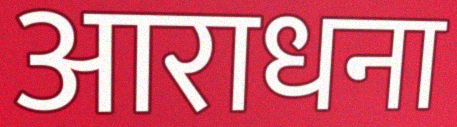
आराधना